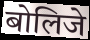
बोलिजे